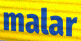
malar